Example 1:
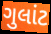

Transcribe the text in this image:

ગુલાંટ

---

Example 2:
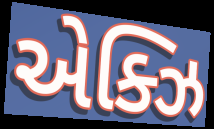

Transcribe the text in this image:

એક્ઝિ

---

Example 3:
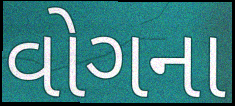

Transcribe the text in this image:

વોગના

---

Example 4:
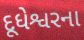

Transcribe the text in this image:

દૂધેશ્વરના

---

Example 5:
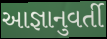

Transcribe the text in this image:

આજ્ઞાનુવર્તી